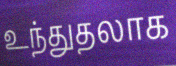
உந்துதலாக